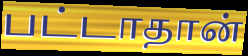
பட்டாதான்